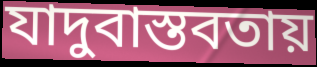
যাদুবাস্তবতায়